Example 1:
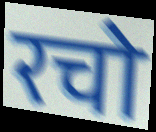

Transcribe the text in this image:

रचो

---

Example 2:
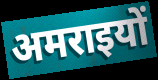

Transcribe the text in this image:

अमराइयों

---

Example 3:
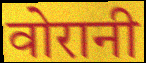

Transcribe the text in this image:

वोरानी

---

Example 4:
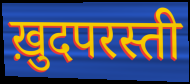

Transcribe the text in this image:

ख़ुदपरस्ती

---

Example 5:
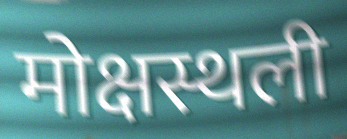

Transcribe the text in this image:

मोक्षस्थली